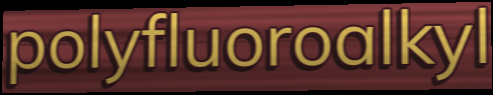
polyfluoroalkyl